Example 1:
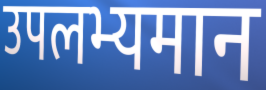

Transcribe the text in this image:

उपलभ्यमान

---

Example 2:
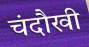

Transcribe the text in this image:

चंदौखी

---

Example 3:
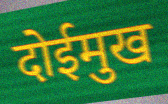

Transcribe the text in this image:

दोईमुख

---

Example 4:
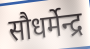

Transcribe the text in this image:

सौधर्मेन्द्र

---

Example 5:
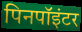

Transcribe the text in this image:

पिनपॉइंटर